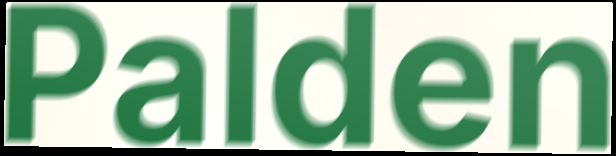
Palden